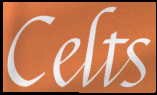
Celts